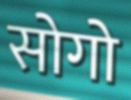
सोगो